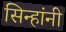
सिन्हांनी